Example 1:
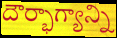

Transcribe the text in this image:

దౌర్భాగ్యాన్ని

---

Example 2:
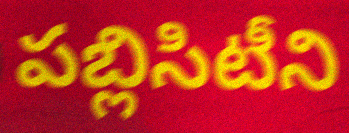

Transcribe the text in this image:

పబ్లిసిటీని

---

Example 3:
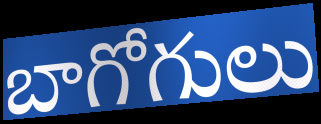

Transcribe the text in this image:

బాగోగులు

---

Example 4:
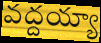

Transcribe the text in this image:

వద్దయ్యా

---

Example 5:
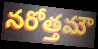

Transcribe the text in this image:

నరోత్తమౌ